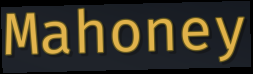
Mahoney